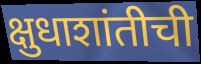
क्षुधाशांतीची